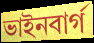
ভাইনবার্গ